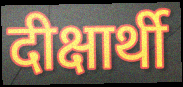
दीक्षार्थी